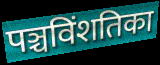
पञ्चविंशतिका